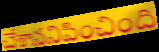
చేశాననిపించింది